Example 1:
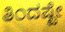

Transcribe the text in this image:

ತಿಂದಷ್ಟೇ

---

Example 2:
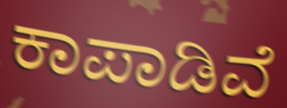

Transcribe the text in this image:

ಕಾಪಾಡಿವೆ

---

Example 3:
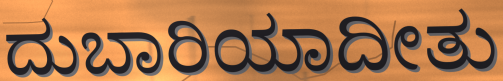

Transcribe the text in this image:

ದುಬಾರಿಯಾದೀತು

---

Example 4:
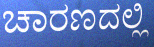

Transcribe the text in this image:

ಚಾರಣದಲ್ಲಿ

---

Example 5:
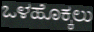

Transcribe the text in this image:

ಒಳಹೊಕ್ಕಲು